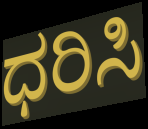
ಧರಿಸಿ